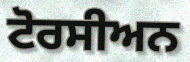
ਟੋਰਸੀਅਨ